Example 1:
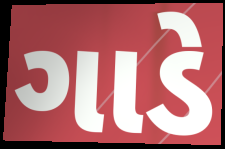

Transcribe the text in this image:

ગાડે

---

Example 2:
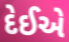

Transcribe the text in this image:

દેઈએ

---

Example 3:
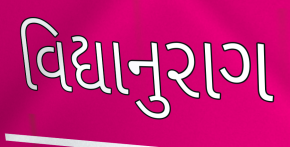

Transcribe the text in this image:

વિદ્યાનુરાગ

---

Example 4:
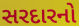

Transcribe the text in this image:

સરદારનો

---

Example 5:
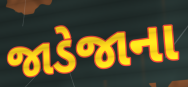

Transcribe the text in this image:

જાડેજાના